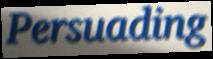
Persuading